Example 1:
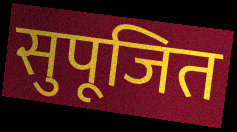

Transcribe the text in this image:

सुपूजित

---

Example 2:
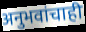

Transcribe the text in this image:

अनुभवांचाही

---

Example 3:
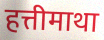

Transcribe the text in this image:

हत्तीमाथा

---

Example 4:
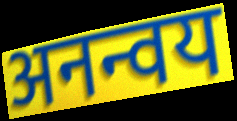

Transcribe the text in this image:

अनन्वय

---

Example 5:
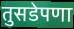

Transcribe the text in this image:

तुसडेपणा